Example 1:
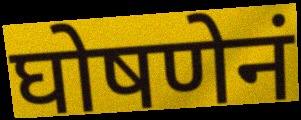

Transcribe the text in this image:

घोषणेनं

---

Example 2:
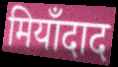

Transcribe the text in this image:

मियाँदाद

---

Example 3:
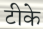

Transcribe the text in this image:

टीके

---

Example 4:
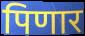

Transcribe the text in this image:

पिणार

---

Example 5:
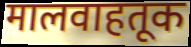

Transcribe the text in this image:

मालवाहतूक